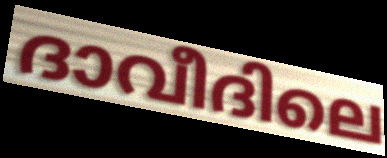
ദാവീദിലെ